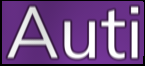
Auti